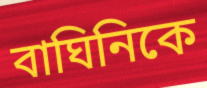
বাঘিনিকে